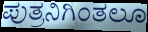
ಪುತ್ರನಿಗಿಂತಲೂ